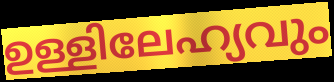
ഉള്ളിലേഹ്യവും